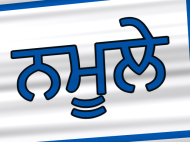
ਨਮੂਲੇ